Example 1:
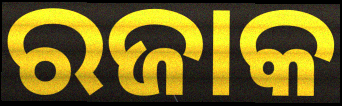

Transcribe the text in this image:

ରଜାକ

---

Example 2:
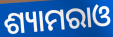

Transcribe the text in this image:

ଶ୍ୟାମରାଓ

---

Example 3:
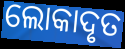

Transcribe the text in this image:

ଲୋକାଦୃତ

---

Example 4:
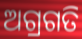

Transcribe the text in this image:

ଅଗ୍ରଗତି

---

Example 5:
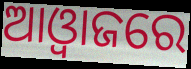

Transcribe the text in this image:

ଆଓ୍ୱାଜରେ